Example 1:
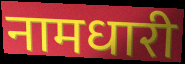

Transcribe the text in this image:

नामधारी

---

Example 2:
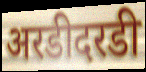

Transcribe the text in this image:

अरडीदरडी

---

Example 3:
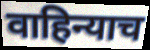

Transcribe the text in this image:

वाहिन्याच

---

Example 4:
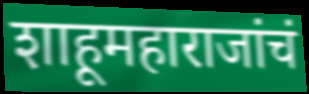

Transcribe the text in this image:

शाहूमहाराजांचं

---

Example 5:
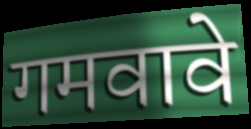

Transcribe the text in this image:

गमवावे